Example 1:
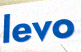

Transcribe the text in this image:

levo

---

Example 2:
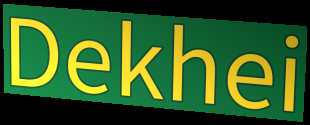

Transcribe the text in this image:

Dekhei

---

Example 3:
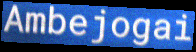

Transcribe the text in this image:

Ambejogai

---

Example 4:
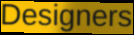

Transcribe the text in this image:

Designers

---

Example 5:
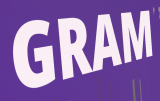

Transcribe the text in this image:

GRAM